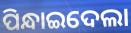
ପିନ୍ଧାଇଦେଲା